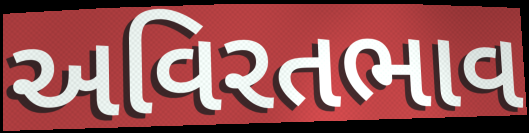
અવિરતભાવ